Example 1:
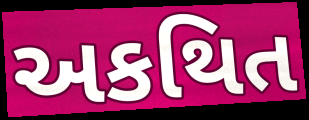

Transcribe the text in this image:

અકથિત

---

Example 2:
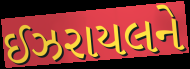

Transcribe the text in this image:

ઈઝરાયલને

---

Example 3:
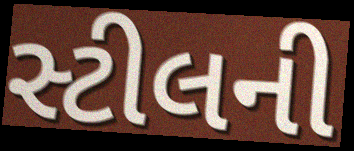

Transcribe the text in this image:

સ્ટીલની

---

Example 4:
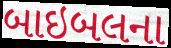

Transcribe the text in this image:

બાઇબલના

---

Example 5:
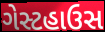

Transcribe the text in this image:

ગેસ્ટહાઉસ